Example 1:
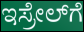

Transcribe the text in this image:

ಇಸ್ರೇಲ್‍ಗೆ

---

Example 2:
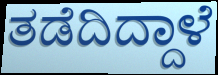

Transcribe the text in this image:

ತಡೆದಿದ್ದಾಳೆ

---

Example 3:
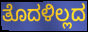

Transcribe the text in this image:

ತೊದಳಿಲ್ಲದ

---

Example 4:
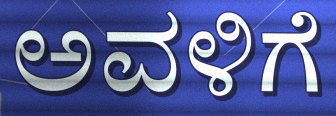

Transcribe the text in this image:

ಅವಳಿಗೆ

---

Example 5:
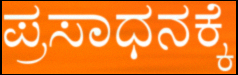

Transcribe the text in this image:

ಪ್ರಸಾಧನಕ್ಕೆ